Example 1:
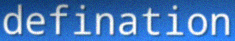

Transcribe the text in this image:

defination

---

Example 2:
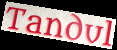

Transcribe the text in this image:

Tandul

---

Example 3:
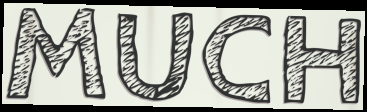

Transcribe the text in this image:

MUCH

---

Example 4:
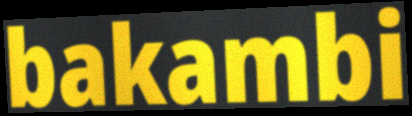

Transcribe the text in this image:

bakambi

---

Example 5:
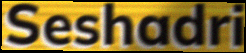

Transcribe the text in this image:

Seshadri